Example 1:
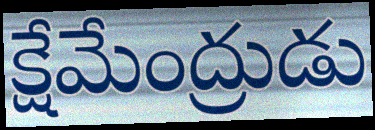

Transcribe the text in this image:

క్షేమేంద్రుడు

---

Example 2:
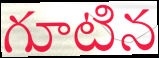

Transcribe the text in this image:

గూటిన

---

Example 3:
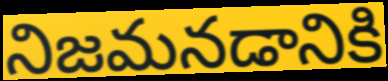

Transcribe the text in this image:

నిజమనడానికి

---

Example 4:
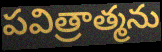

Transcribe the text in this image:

పవిత్రాత్మను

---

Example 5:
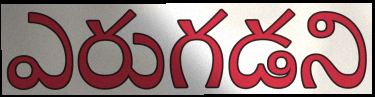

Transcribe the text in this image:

ఎరుగడని